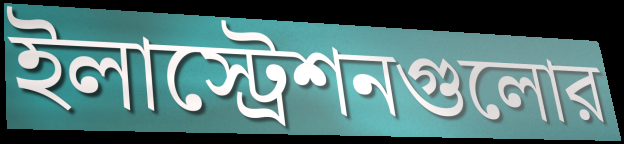
ইলাস্ট্রেশনগুলোর